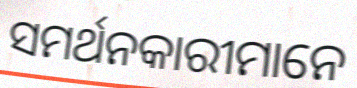
ସମର୍ଥନକାରୀମାନେ